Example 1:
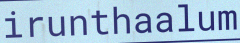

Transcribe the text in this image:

irunthaalum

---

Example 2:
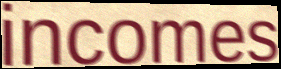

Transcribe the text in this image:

incomes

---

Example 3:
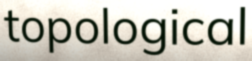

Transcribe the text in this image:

topological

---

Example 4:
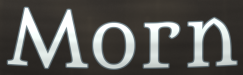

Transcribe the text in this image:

Morn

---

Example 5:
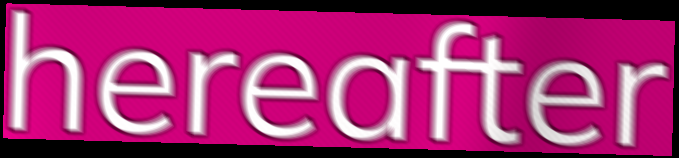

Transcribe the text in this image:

hereafter